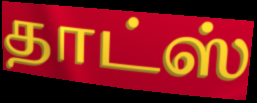
தாட்ஸ்